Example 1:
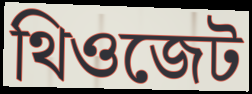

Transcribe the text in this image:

থিওজেট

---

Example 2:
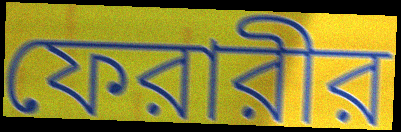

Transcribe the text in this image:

ফেরারীর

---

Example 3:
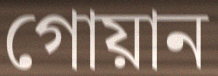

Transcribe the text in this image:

গোয়ান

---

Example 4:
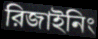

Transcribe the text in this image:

রিজাইনিং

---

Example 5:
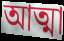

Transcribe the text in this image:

আত্মা